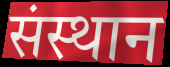
संस्‍थान